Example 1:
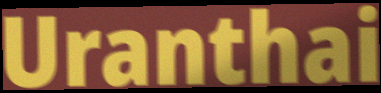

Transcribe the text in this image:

Uranthai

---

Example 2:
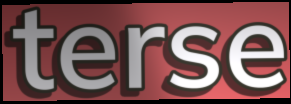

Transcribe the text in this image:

terse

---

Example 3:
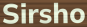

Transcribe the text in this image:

Sirsho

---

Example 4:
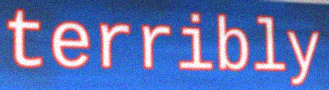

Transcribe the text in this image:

terribly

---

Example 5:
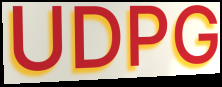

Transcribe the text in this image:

UDPG